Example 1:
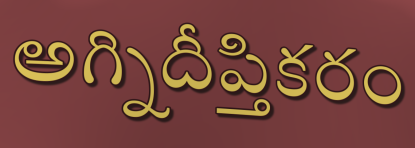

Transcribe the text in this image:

అగ్నిదీప్తికరం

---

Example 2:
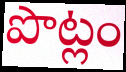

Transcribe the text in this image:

పొట్లం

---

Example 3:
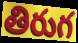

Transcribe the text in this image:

తిరుగ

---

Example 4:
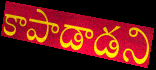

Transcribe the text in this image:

కాపాడాడని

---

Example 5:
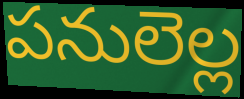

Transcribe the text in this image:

పనులెల్ల